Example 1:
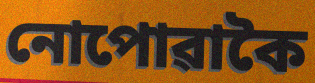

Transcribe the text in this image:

নোপোৱাকৈ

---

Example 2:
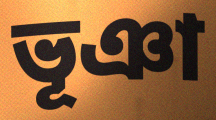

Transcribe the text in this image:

ভূঞা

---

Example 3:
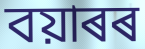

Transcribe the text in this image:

বয়াৰৰ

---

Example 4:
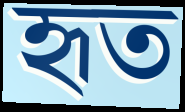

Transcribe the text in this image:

হৃত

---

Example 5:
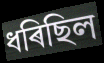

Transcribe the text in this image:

ধৰিছিল